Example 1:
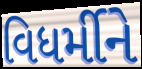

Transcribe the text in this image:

વિધર્મીને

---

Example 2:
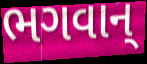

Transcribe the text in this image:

ભગવાન્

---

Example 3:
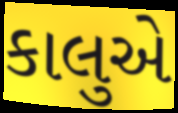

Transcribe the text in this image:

કાલુએ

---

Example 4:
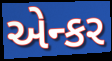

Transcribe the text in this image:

એન્કર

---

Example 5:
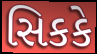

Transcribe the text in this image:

સિકકે